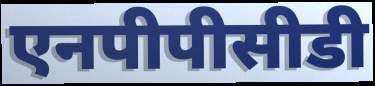
एनपीपीसीडी